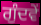
ਗੁੰਦਵੇਂ